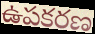
ఉపకరణ